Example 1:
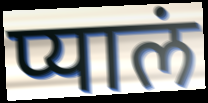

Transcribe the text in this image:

प्यालं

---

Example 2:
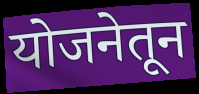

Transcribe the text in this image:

योजनेतून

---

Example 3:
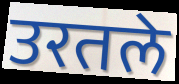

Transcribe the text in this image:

उरतले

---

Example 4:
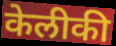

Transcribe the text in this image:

केलीकी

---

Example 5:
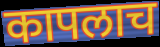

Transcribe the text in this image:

कापलाच